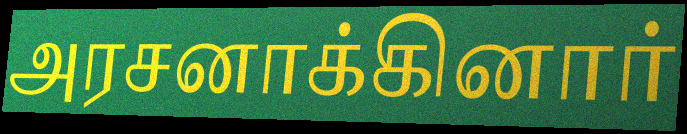
அரசனாக்கினார்